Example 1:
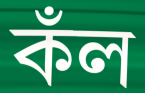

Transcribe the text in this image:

কঁল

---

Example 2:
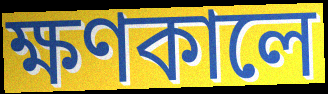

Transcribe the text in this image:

ক্ষণকালে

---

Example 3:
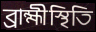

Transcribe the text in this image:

ব্রাহ্মীস্থিতি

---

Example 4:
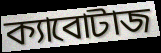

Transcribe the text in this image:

ক্যাবোটাজ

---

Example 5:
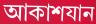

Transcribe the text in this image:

আকাশযান